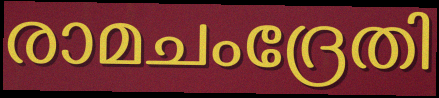
രാമചംദ്രേതി